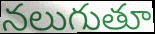
నలుగుతూ